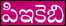
పిఇకెబి